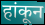
हांकून